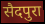
सैदपुरा